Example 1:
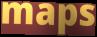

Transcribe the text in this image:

maps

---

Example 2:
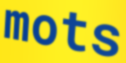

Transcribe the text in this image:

mots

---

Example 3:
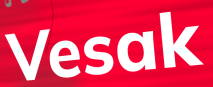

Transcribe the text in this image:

Vesak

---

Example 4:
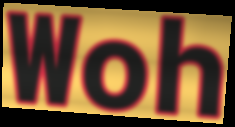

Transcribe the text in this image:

Woh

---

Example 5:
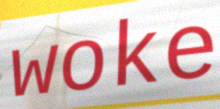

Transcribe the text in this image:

woke